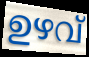
ഉഴവ്